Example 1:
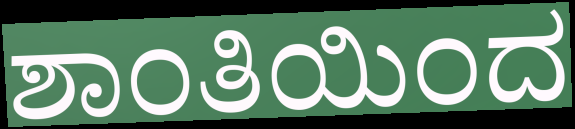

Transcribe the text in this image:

ಶಾಂತಿಯಿಂದ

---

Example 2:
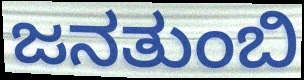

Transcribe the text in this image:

ಜನತುಂಬಿ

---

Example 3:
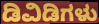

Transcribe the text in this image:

ಡಿವಿಡಿಗಳು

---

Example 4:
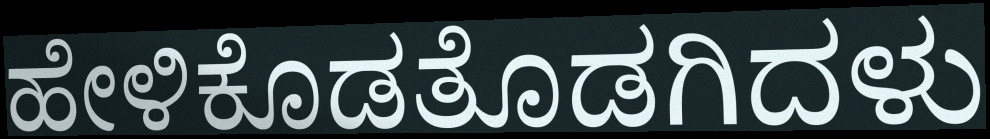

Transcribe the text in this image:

ಹೇಳಿಕೊಡತೊಡಗಿದಳು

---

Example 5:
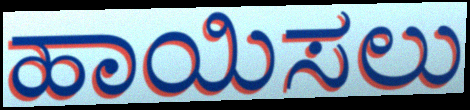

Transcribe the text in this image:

ಹಾಯಿಸಲು